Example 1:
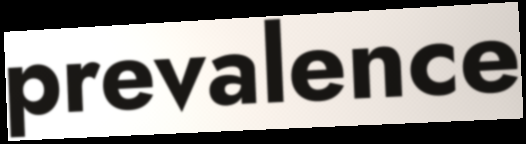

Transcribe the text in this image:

prevalence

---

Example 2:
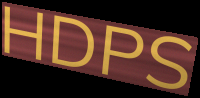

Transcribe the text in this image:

HDPS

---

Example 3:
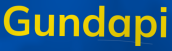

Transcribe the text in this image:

Gundapi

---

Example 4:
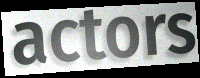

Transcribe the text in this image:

actors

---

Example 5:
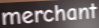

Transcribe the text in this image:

merchant